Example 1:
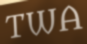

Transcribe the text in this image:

TWA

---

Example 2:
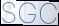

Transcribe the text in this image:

SGC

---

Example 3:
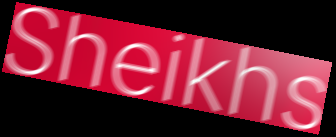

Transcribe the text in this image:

Sheikhs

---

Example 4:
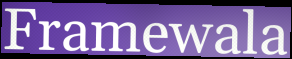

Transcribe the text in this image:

Framewala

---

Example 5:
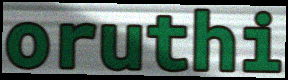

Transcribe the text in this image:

oruthi